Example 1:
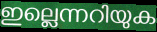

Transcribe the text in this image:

ഇല്ലെന്നറിയുക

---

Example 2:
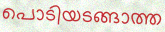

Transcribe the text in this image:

പൊടിയടങ്ങാത്ത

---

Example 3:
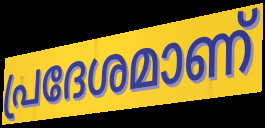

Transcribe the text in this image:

പ്രദേശമാണ്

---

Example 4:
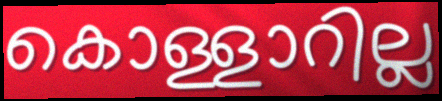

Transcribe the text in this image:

കൊള്ളാറില്ല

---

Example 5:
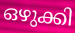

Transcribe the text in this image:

ഒഴുക്കി